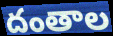
దంతాల